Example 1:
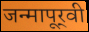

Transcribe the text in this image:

जन्मापूर्वी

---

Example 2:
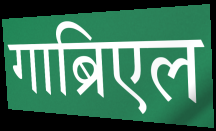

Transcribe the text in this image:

गाब्रिएल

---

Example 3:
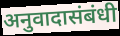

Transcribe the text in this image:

अनुवादासंबंधी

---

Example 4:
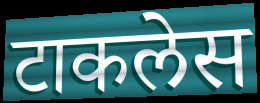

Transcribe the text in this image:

टाकलेस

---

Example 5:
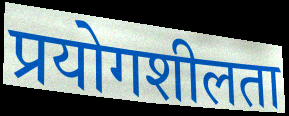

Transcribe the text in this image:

प्रयोगशीलता